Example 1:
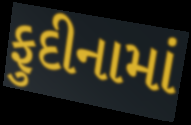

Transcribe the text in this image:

ફુદીનામાં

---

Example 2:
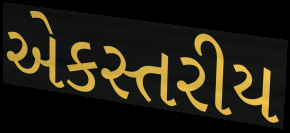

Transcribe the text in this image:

એકસ્તરીય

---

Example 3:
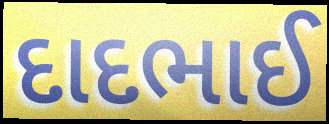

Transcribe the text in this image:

દાદભાઈ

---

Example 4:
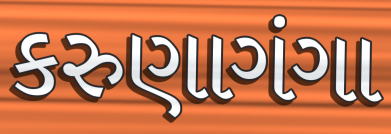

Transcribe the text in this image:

કરુણાગંગા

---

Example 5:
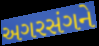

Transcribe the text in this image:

અગરસંગને